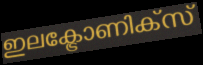
ഇലക്ട്രോണിക്‌സ്